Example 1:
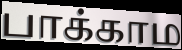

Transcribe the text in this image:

பாக்காம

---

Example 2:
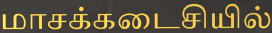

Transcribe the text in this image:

மாசக்கடைசியில்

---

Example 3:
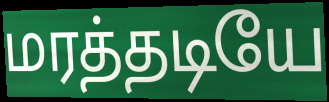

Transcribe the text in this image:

மரத்தடியே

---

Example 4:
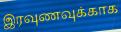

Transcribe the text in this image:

இரவுணவுக்காக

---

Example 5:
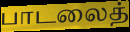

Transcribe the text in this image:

பாடலைத்